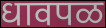
धावपळ